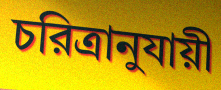
চরিত্রানুযায়ী